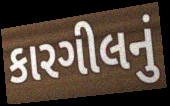
કારગીલનું